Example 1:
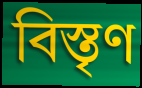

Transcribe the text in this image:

বিস্তৃণ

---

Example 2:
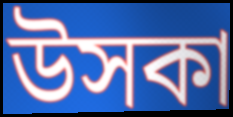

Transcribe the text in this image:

উসকা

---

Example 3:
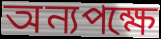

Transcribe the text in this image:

অন্যপক্ষে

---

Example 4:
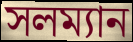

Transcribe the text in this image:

সলম্যান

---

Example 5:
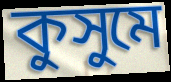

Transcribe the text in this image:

কুসুমে